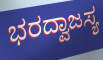
ಭರದ್ವಾಜಸ್ಯ